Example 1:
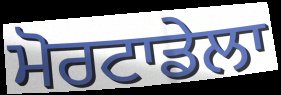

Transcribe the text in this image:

ਮੋਰਟਾਡੇਲਾ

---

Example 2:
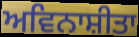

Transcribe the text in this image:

ਅਵਿਨਾਸ਼ੀਤਾ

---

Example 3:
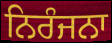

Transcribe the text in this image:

ਨਿਰੰਜਨਾ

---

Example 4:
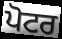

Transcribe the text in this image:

ਪੋਟਰ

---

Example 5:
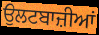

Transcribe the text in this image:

ਉਲਟਬਾਜ਼ੀਆਂ